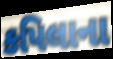
કપિલાના